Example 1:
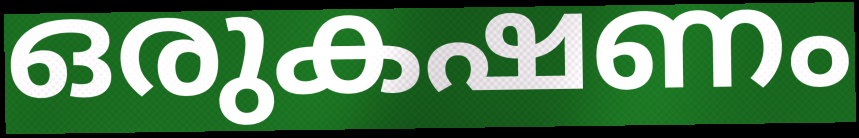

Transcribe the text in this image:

ഒരുകഷണം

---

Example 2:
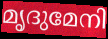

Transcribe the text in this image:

മൃദുമേനി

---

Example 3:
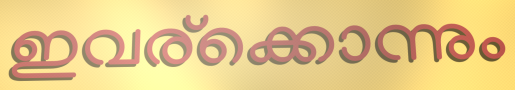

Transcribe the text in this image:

ഇവര്ക്കൊന്നും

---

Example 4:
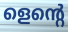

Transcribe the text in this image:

ളെന്റെ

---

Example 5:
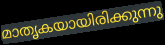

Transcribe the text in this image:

മാതൃകയായിരിക്കുന്നു